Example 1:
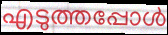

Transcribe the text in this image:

എടുത്തപ്പോൾ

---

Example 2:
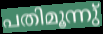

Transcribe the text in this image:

പതിമൂന്നു്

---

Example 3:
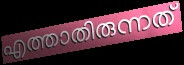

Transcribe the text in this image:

എത്താതിരുന്നത്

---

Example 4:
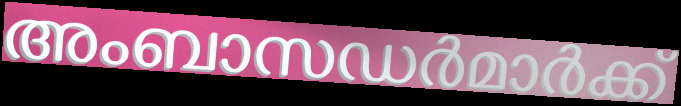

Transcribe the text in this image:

അംബാസഡർമാർക്ക്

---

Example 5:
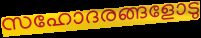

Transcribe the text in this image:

സഹോദരങ്ങളോടു